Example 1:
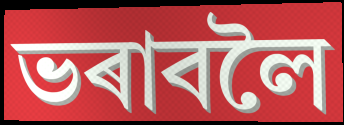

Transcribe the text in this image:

ভৰাবলৈ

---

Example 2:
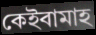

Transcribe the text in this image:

কেইবামাহ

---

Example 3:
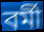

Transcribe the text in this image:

বৰ্মী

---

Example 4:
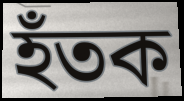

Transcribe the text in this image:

হঁতক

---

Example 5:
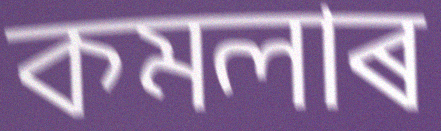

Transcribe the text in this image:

কমলাৰ